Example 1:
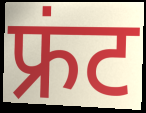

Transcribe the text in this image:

फ्रंट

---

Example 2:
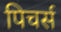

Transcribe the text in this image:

पिचर्स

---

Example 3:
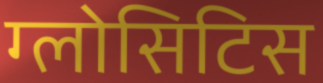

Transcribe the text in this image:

ग्लोसिटिस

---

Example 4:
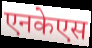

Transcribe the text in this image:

एनकेएस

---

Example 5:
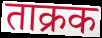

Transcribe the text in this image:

ताक्रक